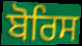
ਬੋਰਿਸ